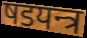
षडयन्त्र